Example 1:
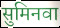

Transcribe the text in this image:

सुमिनवा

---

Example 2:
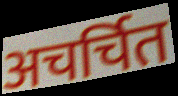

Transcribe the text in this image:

अचर्चित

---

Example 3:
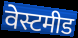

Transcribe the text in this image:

वेस्टमीड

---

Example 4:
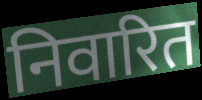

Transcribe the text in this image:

निवारित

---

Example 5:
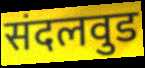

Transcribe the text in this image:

संदलवुड